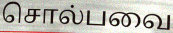
சொல்பவை